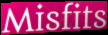
Misfits